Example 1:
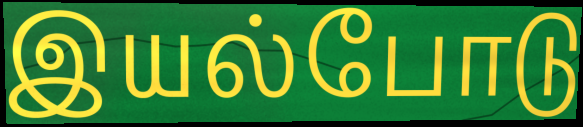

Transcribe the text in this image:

இயல்போடு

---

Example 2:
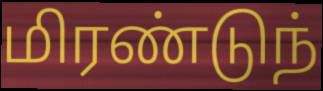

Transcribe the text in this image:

மிரண்டுந்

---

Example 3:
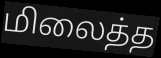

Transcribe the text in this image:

மிலைத்த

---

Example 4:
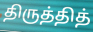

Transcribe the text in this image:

திருத்தித்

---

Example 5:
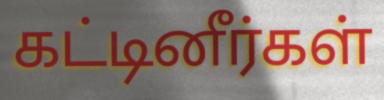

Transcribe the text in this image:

கட்டினீர்கள்